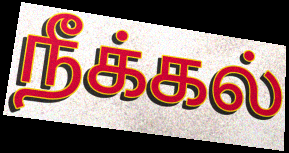
நீக்கல்